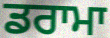
ਡਰਾਮਾ